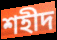
শহীদ